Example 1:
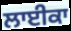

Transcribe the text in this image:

ਲਾਈਕਾ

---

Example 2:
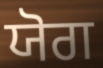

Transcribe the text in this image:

ਯੋਗ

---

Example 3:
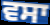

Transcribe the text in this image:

ਵਸਾ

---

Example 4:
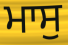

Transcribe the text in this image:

ਮਾਸੁ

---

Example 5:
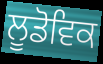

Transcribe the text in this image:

ਲੂਡੋਵਿਕ